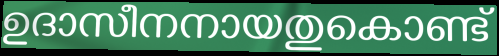
ഉദാസീനനായതുകൊണ്ട്